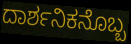
ದಾರ್ಶನಿಕನೊಬ್ಬ